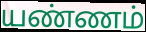
யண்ணம்